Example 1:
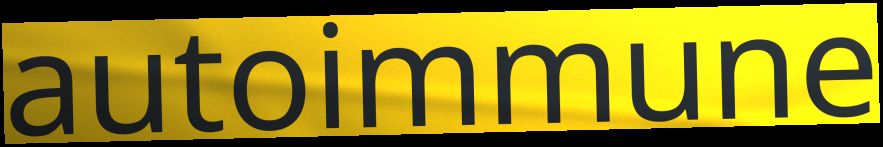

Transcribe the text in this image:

autoimmune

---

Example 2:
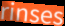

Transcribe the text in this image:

rinses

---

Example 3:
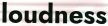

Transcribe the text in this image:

loudness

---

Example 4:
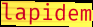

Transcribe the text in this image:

lapidem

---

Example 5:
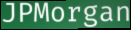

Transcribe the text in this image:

JPMorgan